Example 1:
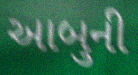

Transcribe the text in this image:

આબુની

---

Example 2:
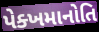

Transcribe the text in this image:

પેક્ખમાનોતિ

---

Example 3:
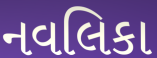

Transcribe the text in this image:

નવલિકા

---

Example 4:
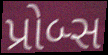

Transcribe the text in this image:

પ્રોબ્સ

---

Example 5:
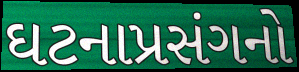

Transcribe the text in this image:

ઘટનાપ્રસંગનો